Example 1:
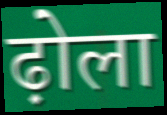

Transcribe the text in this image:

ढ़ोला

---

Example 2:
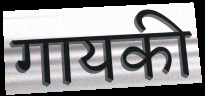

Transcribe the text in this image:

गायकी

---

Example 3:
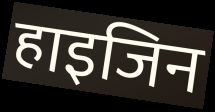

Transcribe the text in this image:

हाइजिन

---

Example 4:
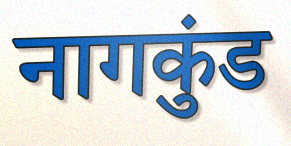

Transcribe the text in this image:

नागकुंड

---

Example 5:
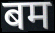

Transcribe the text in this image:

बम